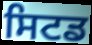
ਸਿਟਡ